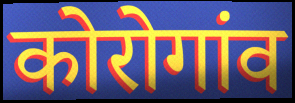
कोरोगांव